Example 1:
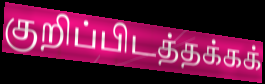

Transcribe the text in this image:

குறிப்பிடத்தக்கக்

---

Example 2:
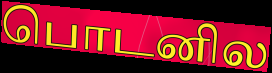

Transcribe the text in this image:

பொடனில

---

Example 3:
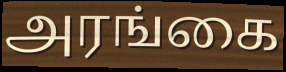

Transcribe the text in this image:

அரங்கை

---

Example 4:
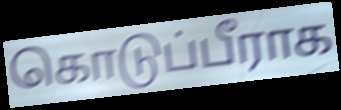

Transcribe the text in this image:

கொடுப்பீராக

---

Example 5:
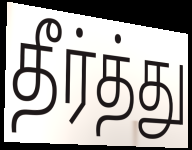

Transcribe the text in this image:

தீர்த்து